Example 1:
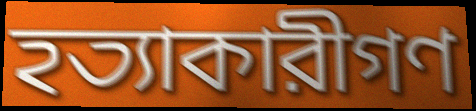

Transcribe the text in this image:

হত্যাকারীগণ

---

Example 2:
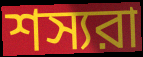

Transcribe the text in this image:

শস্যরা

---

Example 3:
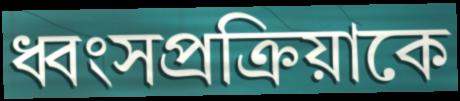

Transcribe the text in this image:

ধ্বংসপ্রক্রিয়াকে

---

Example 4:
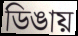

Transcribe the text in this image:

ডিঙায়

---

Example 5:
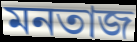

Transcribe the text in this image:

মনতাজ